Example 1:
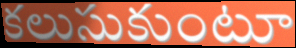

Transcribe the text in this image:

కలుసుకుంటూ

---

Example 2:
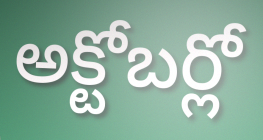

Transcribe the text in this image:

అక్టోబర్లో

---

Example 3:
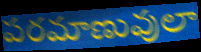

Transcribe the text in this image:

పరమాణువులా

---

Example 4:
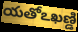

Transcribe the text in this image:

యతోఽఖణ్డి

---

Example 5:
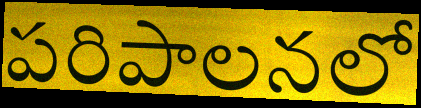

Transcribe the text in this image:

పరిపాలనలో